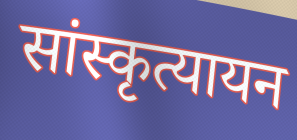
सांस्कृत्यायन